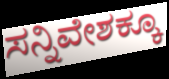
ಸನ್ನಿವೇಶಕ್ಕೂ